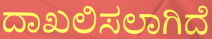
ದಾಖಲಿಸಲಾಗಿದೆ